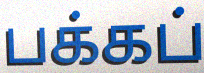
பக்கப்